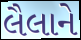
લૈલાને